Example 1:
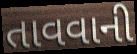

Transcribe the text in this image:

તાવવાની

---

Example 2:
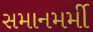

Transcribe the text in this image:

સમાનમર્મી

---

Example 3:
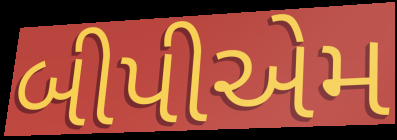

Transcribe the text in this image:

બીપીએમ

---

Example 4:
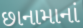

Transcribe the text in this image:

છાનામાનાં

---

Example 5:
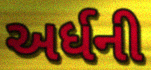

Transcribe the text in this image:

અર્ધની